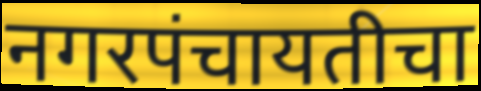
नगरपंचायतीचा